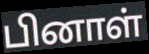
பினாள்